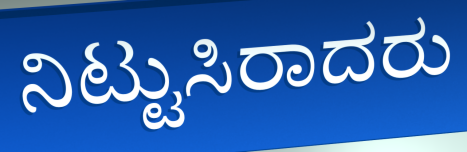
ನಿಟ್ಟುಸಿರಾದರು